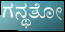
ಗನ್ಥತೋ